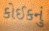
કોઈકનું